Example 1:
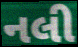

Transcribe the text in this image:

નલી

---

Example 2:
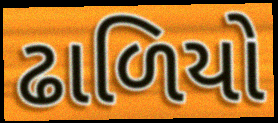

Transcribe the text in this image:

ઢાળિયો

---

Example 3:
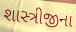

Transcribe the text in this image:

શાસ્ત્રીજીના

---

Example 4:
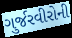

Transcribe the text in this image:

ગુર્જરવીરોની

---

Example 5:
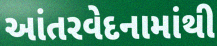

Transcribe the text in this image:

આંતરવેદનામાંથી